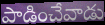
పాడించేవాడు